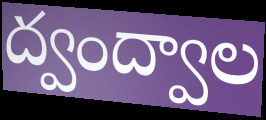
ద్వంద్వాల